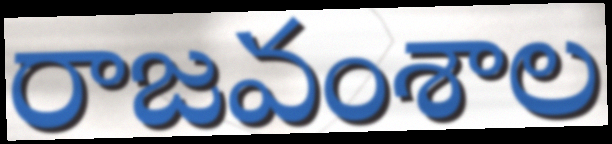
రాజవంశాల